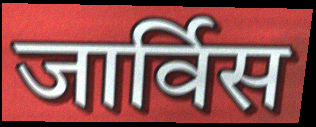
जार्विस